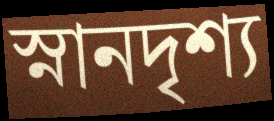
স্নানদৃশ্য